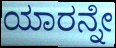
ಯಾರನ್ನೇ